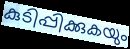
കുടിപ്പിക്കുകയും